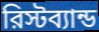
রিস্টব্যান্ড